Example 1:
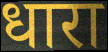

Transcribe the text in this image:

धारा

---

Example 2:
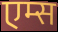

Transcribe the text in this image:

एम्स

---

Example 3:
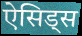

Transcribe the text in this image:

ऐसिड्स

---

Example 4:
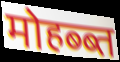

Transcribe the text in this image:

मोहब्ब्त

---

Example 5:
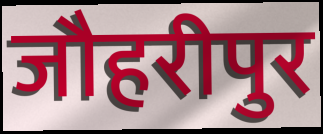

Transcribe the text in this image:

जौहरीपुर